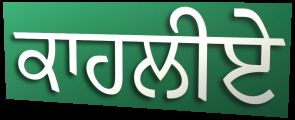
ਕਾਹਲੀਏ